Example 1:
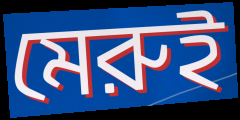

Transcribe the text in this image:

মেরুই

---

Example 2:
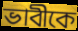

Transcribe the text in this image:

ভাবীকে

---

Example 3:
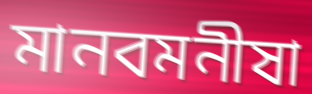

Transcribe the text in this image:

মানবমনীষা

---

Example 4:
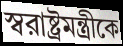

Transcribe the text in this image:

স্বরাষ্ট্রমন্ত্রীকে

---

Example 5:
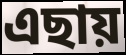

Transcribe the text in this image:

এছায়